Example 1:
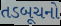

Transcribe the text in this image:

તડબૂચનો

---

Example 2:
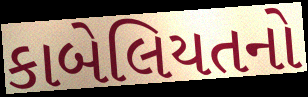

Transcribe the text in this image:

કાબેલિયતનો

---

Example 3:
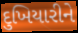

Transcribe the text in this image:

દુખિયારીને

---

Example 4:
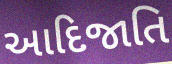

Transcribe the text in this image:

આદિજાતિ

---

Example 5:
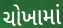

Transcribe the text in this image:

ચોખામાં